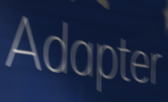
Adapter